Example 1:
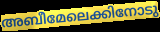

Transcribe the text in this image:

അബീമേലെക്കിനോടു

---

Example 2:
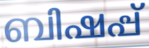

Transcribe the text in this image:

ബിഷപ്പ്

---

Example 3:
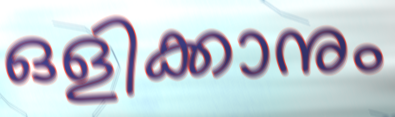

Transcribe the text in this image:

ഒളിക്കാനും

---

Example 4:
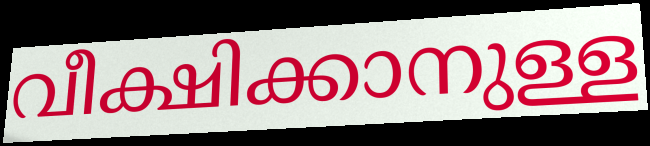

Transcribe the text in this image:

വീക്ഷിക്കാനുള്ള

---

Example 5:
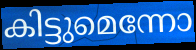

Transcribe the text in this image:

കിട്ടുമെന്നോ